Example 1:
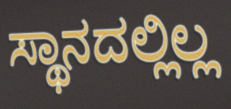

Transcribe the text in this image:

ಸ್ಥಾನದಲ್ಲಿಲ್ಲ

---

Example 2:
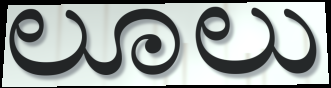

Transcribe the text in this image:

ಲೂಲು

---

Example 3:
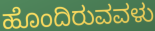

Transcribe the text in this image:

ಹೊಂದಿರುವವಳು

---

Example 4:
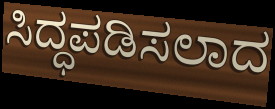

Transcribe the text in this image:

ಸಿದ್ಧಪಡಿಸಲಾದ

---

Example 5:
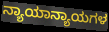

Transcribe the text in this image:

ನ್ಯಾಯಾನ್ಯಾಯಗಳ